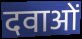
दवाओं